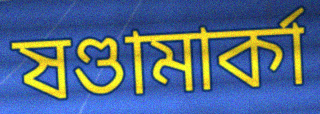
ষণ্ডামার্কা